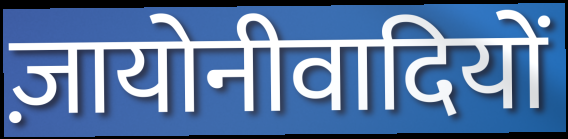
ज़ायोनीवादियों